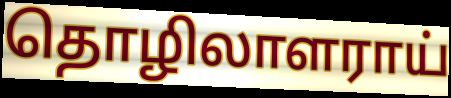
தொழிலாளராய்